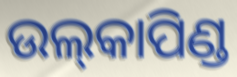
ଉଲ୍‌କାପିଣ୍ଡ